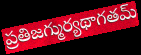
ప్రతిజగ్ముర్యథాగతమ్